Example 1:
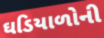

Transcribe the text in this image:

ઘડિયાળોની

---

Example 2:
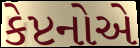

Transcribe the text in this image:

કેપ્ટનોએ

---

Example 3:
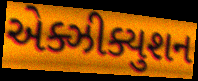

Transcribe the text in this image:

એક્ઝીક્યુશન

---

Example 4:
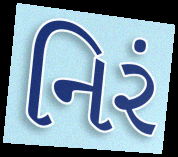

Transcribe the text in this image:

નિરં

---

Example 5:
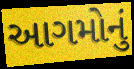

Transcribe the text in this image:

આગમોનું